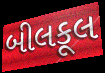
બીલકૂલ